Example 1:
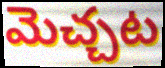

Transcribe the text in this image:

మెచ్చట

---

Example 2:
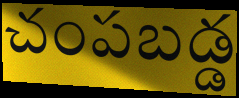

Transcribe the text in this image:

చంపబడ్డ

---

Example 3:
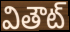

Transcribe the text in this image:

వితౌట్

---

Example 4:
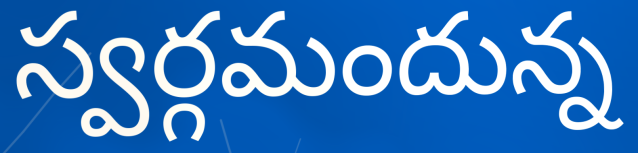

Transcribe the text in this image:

స్వర్గమందున్న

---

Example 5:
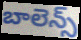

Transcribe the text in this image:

బాలెన్స్